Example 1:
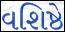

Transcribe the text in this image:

વશિષ્ઠે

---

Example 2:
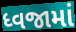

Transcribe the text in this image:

ધ્વજામાં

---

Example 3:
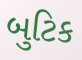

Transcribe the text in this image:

બુટિક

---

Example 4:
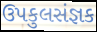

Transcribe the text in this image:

ઉપકુલસંજ્ઞક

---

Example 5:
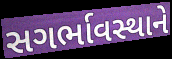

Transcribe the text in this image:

સગર્ભાવસ્થાને